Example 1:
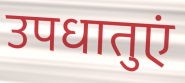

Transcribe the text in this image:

उपधातुएं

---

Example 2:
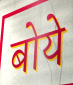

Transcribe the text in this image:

बोये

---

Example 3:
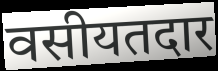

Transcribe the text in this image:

वसीयतदार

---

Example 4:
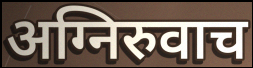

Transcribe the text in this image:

अग्निरुवाच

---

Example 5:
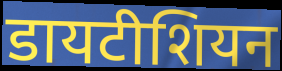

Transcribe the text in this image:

डायटीशियन